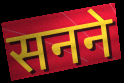
सनने